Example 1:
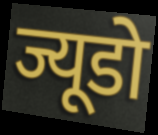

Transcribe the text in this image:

ज्यूडो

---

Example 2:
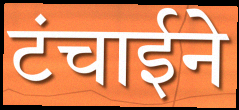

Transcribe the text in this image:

टंचाईने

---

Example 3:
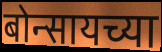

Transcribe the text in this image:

बोन्सायच्या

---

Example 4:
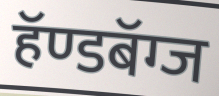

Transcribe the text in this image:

हॅण्डबॅग्ज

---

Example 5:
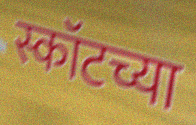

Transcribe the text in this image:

स्कॉटच्या